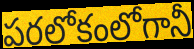
పరలోకంలోగానీ